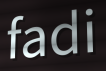
fadi